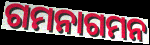
ଗମନାଗମନ